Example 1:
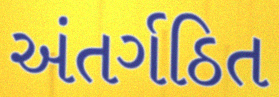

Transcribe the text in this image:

અંતર્ગઠિત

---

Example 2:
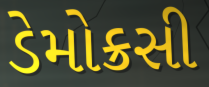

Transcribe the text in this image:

ડેમોક્રસી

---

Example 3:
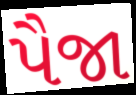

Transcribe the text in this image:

પૈજા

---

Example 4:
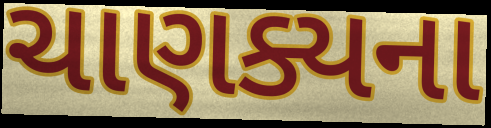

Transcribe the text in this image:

ચાણક્યના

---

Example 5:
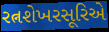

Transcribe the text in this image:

રત્નશેખરસૂરિએ